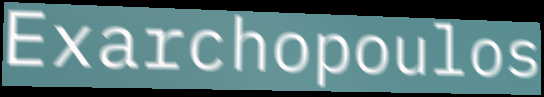
Exarchopoulos